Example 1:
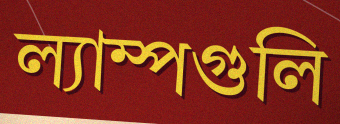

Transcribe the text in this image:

ল্যাম্পগুলি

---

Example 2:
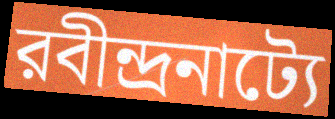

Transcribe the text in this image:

রবীন্দ্রনাট্যে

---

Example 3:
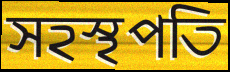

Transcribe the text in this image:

সহস্থপতি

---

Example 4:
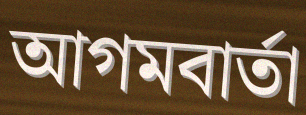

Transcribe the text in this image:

আগমবার্তা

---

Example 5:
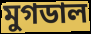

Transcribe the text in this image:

মুগডাল